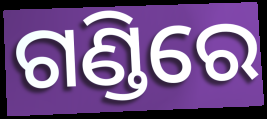
ଗଣ୍ଡିରେ